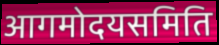
आगमोदयसमिति